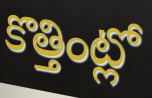
కొత్తింట్లో